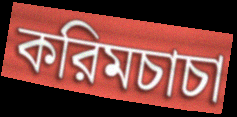
করিমচাচা